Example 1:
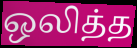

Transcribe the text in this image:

ஒலித்த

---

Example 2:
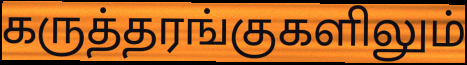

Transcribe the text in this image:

கருத்தரங்குகளிலும்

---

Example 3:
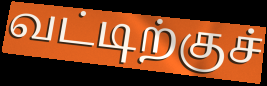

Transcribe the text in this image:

வட்டிற்குச்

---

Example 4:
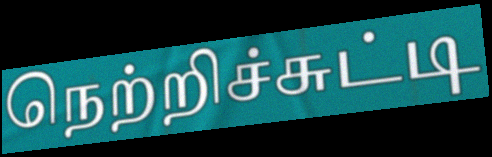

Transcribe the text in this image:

நெற்றிச்சுட்டி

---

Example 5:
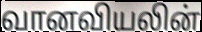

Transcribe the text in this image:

வானவியலின்